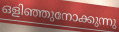
ഒളിഞ്ഞുനോക്കുന്നു